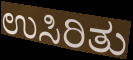
ಉಸಿರಿತು